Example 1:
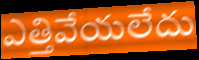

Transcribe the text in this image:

ఎత్తివేయలేదు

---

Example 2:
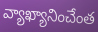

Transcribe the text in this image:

వ్యాఖ్యానించేంత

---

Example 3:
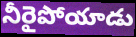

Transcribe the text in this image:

నీరైపోయాడు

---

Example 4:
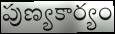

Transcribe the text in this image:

పుణ్యకార్యం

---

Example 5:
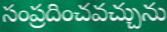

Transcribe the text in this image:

సంప్రదించవచ్చును